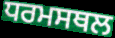
ਧਰਮਸਥਲ